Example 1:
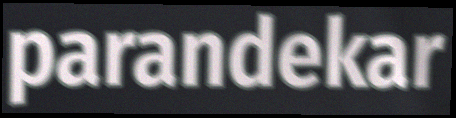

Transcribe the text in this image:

parandekar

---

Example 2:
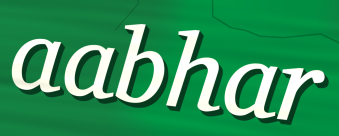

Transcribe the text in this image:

aabhar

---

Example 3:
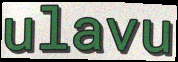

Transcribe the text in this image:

ulavu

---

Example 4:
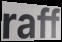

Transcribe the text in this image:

raff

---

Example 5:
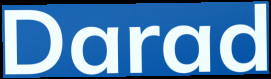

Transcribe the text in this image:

Darad